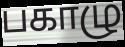
பகாழு